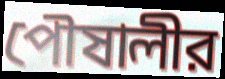
পৌষালীর